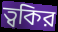
ত্বকির